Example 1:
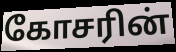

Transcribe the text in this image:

கோசரின்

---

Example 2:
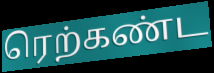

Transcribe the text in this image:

ரெற்கண்ட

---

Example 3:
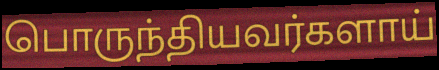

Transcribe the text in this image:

பொருந்தியவர்களாய்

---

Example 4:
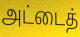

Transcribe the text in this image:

அட்டைத்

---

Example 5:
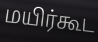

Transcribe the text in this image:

மயிர்கூட